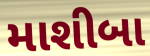
માશીબા